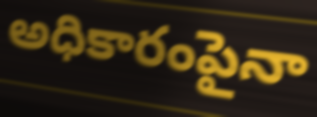
అధికారంపైనా